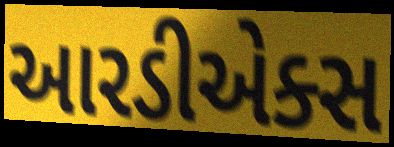
આરડીએક્સ